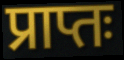
प्राप्तः